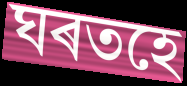
ঘৰতহে